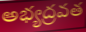
అభ్యద్రవత